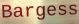
Bargess